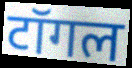
टॉगल